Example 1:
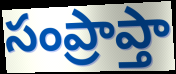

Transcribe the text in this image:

సంప్రాప్తా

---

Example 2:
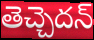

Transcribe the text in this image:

తెచ్చెదన్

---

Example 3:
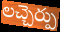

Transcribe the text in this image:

లచ్చెర్పు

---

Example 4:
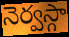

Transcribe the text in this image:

నెర్వస్గా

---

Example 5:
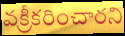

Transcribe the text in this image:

వక్రీకరించారని